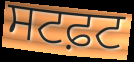
ਸਟਫ਼ਟ